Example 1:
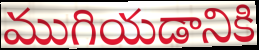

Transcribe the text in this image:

ముగియడానికి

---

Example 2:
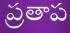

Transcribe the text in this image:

ప్రతాప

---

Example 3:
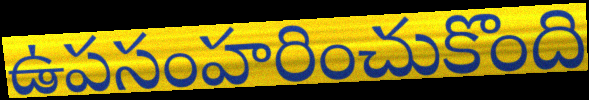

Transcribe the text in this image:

ఉపసంహరించుకొంది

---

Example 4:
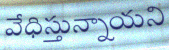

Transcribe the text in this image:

వేధిస్తున్నాయని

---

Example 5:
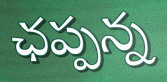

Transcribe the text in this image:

ఛప్పన్న